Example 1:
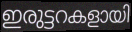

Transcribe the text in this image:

ഇരുട്ടറകളായി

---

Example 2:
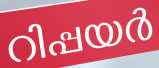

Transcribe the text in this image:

റിപ്പയർ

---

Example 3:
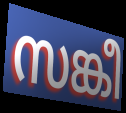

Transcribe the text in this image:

സങ്കീ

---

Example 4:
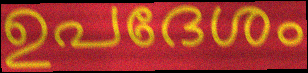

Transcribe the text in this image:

ഉപദേശം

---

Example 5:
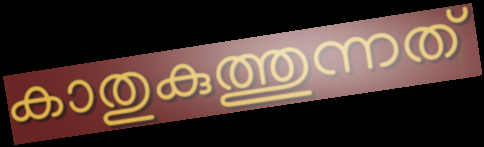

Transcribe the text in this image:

കാതുകുത്തുന്നത്